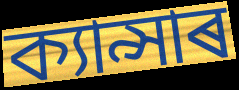
ক্যান্সাৰ